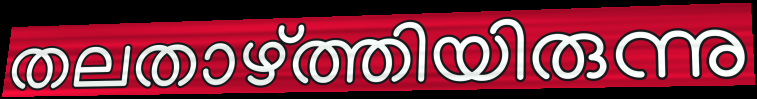
തലതാഴ്ത്തിയിരുന്നു